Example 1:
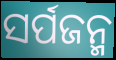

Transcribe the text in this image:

ସର୍ପଜନ୍ମ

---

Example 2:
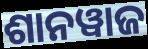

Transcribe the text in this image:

ଶାନୱାଜ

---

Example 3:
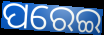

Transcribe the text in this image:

ପରେଇ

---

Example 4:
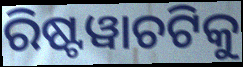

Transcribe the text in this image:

ରିଷ୍ଟୱାଚଟିକୁ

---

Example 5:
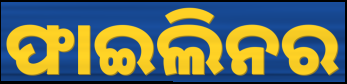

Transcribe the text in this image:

ଫାଇଲିନର